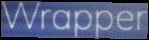
Wrapper